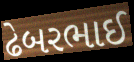
ઢેબરભાઈ